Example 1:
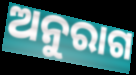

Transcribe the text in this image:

ଅନୁରାଗ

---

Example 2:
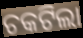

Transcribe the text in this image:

ଚକଟିଲା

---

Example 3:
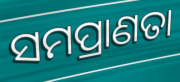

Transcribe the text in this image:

ସମପ୍ରାଣତା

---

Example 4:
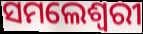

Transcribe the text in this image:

ସମଲେଶ୍ୱରୀ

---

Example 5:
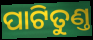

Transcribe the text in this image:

ପାଟିତୁଣ୍ତ